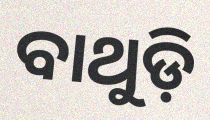
ବାଥୁଡ଼ି